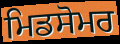
ਮਿਡਸੋਮਰ